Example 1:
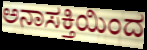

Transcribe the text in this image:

ಅನಾಸಕ್ತಿಯಿಂದ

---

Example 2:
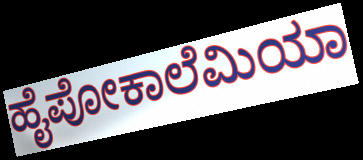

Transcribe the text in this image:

ಹೈಪೋಕಾಲೆಮಿಯಾ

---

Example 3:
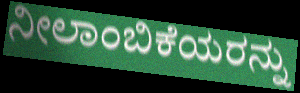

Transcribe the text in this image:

ನೀಲಾಂಬಿಕೆಯರನ್ನು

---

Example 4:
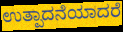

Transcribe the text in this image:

ಉತ್ಪಾದನೆಯಾದರೆ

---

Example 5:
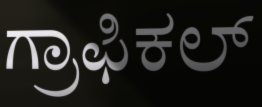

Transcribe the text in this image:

ಗ್ರಾಫಿಕಲ್